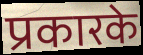
प्रकारके